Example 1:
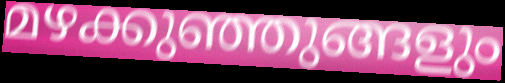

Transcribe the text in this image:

മഴക്കുഞ്ഞുങ്ങളും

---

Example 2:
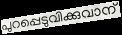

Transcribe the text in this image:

പുറപ്പെടുവിക്കുവാന്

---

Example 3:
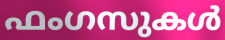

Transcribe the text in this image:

ഫംഗസുകൾ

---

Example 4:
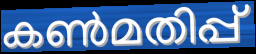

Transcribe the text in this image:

കൺമതിപ്പ്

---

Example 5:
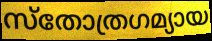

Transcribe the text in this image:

സ്തോത്രഗമ്യായ